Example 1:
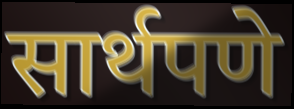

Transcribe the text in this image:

सार्थपणे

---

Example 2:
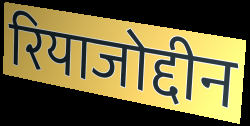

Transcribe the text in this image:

रियाजोद्दीन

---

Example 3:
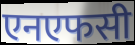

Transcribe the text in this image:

एनएफसी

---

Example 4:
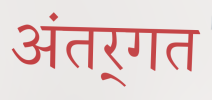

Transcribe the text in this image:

अंतर्गत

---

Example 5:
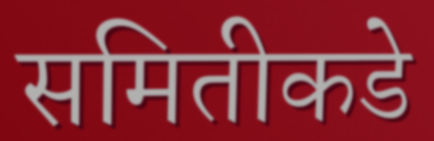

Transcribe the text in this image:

समितीकडे